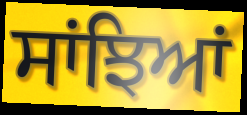
ਸਾਂਝਿਆਂ